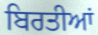
ਬਿਰਤੀਆਂ